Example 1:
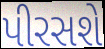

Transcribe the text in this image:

પીરસશે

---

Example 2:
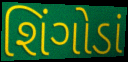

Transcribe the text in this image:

શિંગોડાં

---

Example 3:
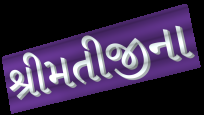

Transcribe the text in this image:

શ્રીમતીજીના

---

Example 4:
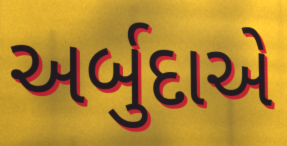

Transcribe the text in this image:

અર્બુદાએ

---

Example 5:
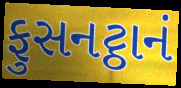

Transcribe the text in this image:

ફુસનટ્ઠાનં